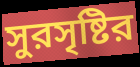
সুরসৃষ্টির